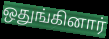
ஒதுங்கினார்